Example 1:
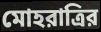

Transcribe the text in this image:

মোহরাত্রির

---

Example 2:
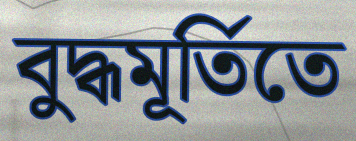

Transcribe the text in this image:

বুদ্ধমূর্তিতে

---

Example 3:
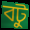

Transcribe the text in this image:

বটু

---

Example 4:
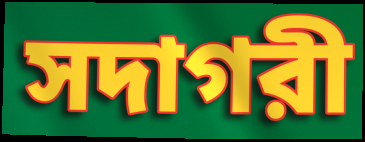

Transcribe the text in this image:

সদাগরী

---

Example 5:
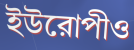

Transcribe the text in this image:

ইউরোপীও